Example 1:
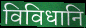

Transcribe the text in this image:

विविधानि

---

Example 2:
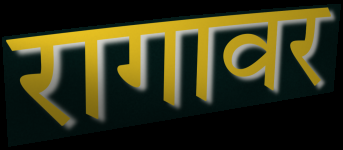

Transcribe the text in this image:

रागावर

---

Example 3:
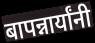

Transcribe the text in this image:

बापन्नार्यांनी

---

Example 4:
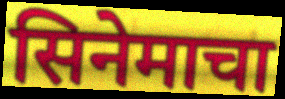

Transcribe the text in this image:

सिनेमाचा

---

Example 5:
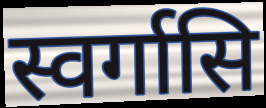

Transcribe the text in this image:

स्वर्गासि